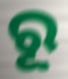
ରୂ